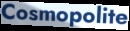
Cosmopolite